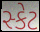
સ્કેટ